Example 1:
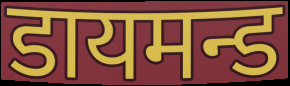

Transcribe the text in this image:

डायमन्ड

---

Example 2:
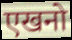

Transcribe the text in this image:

एखनो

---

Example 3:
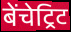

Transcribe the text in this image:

बेंचेट्रिट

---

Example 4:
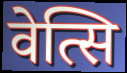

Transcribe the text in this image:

वेत्सि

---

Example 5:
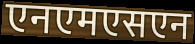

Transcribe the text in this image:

एनएमएसएन